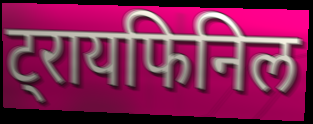
ट्रायफिनिल